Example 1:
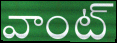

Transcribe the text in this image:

వాంట్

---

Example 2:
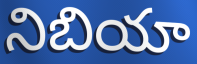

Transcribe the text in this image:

నిబియా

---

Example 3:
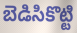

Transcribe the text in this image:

బెడిసికొట్టి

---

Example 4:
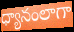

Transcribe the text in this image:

ధ్యానంలాగా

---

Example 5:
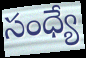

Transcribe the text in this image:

సంధ్యే